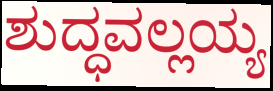
ಶುದ್ಧವಲ್ಲಯ್ಯ